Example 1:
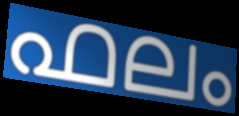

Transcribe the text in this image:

ഫലം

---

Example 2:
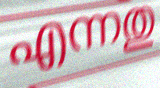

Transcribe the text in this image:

എന്നതു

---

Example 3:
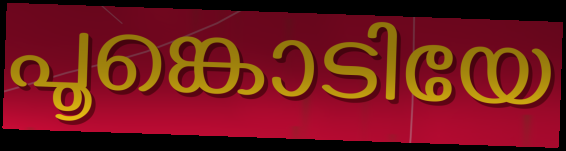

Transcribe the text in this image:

പൂങ്കൊടിയേ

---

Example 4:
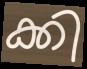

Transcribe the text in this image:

ക്കി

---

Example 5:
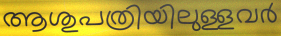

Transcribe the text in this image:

ആശുപത്രിയിലുള്ളവർ